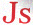
Js